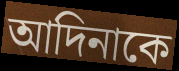
আদিনাকে